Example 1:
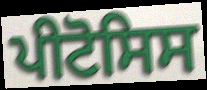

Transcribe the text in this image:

ਪੀਟੋਸਿਸ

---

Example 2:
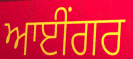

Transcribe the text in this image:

ਆਈਂਗਰ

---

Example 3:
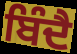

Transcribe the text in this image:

ਬਿੰਦੈ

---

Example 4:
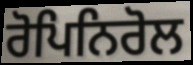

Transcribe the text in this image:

ਰੋਪਿਨਿਰੋਲ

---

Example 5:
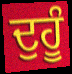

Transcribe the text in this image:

ਦੁਹੂੰ